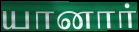
யானார்